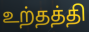
உற்தத்தி